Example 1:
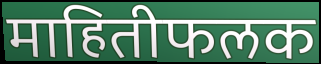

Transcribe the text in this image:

माहितीफलक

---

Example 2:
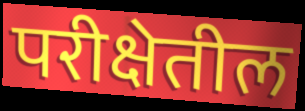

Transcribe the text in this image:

परीक्षेतील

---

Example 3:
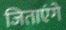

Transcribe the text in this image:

जिताएंगे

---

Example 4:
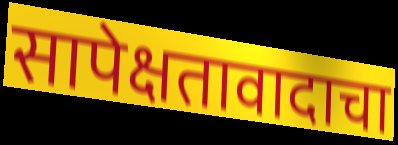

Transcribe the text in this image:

सापेक्षतावादाचा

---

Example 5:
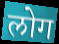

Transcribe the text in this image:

लोग